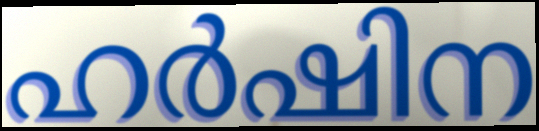
ഹർഷിന